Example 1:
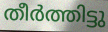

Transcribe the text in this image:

തീർത്തിട്ടു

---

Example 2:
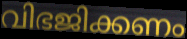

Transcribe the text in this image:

വിഭജിക്കണം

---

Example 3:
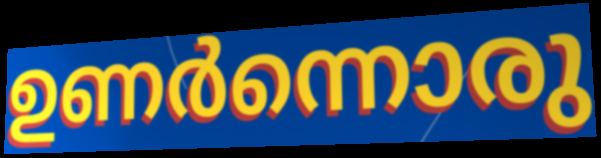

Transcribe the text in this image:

ഉണർന്നൊരു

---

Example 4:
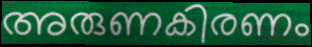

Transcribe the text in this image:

അരുണകിരണം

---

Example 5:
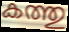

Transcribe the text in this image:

കത്തു